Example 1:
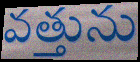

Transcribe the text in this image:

వత్తును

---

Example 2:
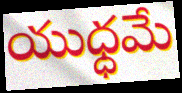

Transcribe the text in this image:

యుధ్ధమే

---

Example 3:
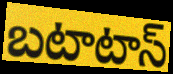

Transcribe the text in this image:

బటాటాస్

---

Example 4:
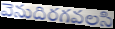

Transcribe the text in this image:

వెనుదిరగవలసి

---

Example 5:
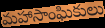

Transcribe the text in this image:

మహాసాంఘికులు